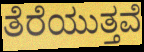
ತೆರೆಯುತ್ತವೆ